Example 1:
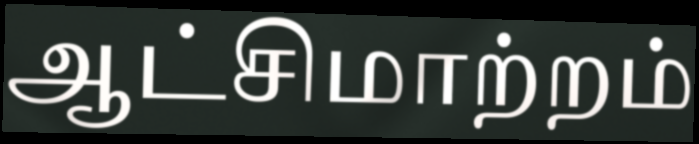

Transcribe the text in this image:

ஆட்சிமாற்றம்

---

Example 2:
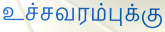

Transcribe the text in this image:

உச்சவரம்புக்கு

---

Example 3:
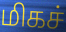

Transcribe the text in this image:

மிகச்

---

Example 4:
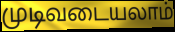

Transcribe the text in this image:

முடிவடையலாம்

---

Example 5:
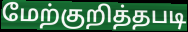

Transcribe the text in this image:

மேற்குறித்தபடி